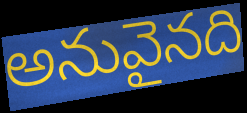
అనువైనది